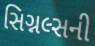
સિગ્નલ્સની